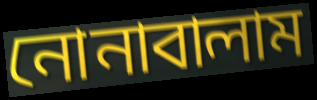
নোনাবালাম